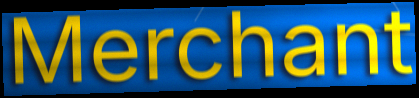
Merchant